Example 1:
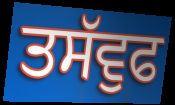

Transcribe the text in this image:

ਤਸੱਵੁਫ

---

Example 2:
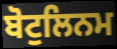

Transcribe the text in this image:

ਬੋਟੁਲਿਨਮ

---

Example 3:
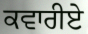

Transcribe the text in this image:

ਕਵਾਰੀਏ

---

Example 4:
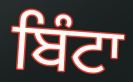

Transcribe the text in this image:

ਬਿੰਟਾ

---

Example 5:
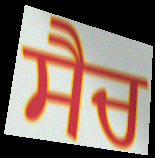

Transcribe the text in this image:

ਸੈਚ